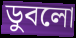
ডুবলো